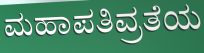
ಮಹಾಪತಿವ್ರತೆಯ